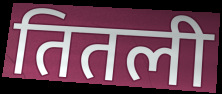
तितली